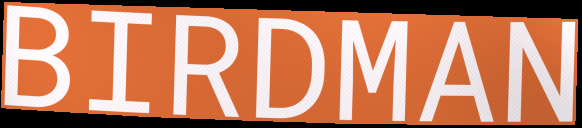
BIRDMAN